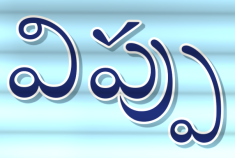
విప్పు